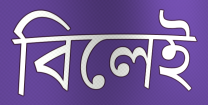
বিলেই